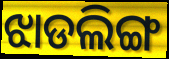
ଝାଡଲିଙ୍ଗ